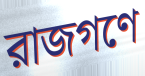
রাজগণে